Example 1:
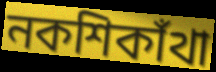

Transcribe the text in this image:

নকশিকাঁথা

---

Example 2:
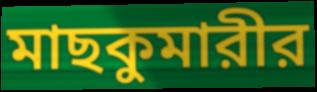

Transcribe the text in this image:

মাছকুমারীর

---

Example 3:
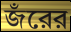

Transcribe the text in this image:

জঁরের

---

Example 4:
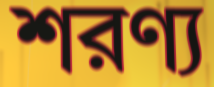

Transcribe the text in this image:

শরণ্য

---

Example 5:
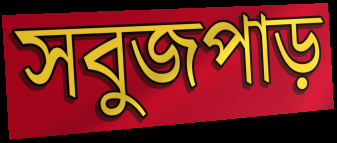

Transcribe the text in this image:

সবুজপাড়